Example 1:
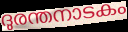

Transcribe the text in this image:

ദുരന്തനാടകം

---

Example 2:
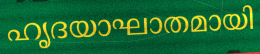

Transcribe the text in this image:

ഹൃദയാഘാതമായി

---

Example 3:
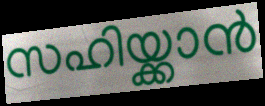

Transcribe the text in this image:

സഹിയ്ക്കാൻ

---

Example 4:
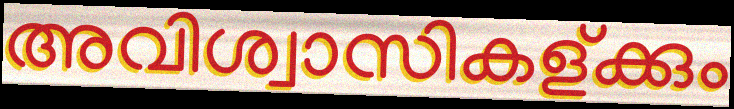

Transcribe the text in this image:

അവിശ്വാസികള്ക്കും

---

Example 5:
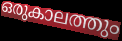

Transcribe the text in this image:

ഒരുകാലത്തും